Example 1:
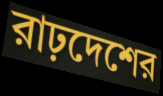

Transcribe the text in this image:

রাঢ়দেশের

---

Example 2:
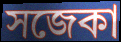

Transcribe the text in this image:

সজেকা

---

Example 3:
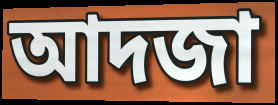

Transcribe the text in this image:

আদজা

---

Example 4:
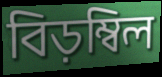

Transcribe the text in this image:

বিড়ম্বিল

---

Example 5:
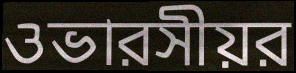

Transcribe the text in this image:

ওভারসীয়র